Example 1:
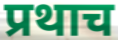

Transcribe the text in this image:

प्रथाच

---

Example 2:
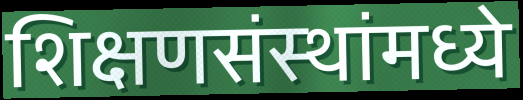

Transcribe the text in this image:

शिक्षणसंस्थांमध्ये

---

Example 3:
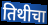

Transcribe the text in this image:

तिथीचा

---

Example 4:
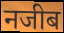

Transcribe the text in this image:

नजीब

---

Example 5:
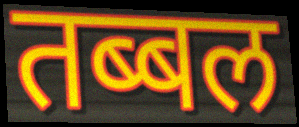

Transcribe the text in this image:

तब्बल